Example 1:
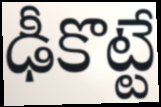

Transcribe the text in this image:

ఢీకొట్టే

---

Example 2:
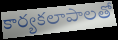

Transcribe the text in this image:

కార్యకలాపాలతో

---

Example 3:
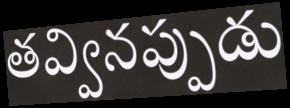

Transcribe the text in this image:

తవ్వినప్పుడు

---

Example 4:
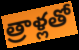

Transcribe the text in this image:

త్రాళ్లతో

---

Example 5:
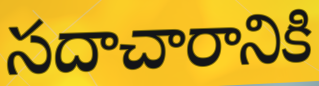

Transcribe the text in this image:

సదాచారానికి